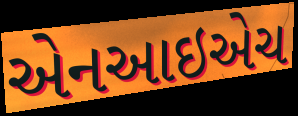
એનઆઇએચ